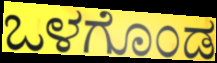
ಒಳಗೊಂಡ